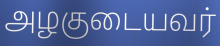
அழகுடையவர்